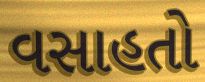
વસાહતો